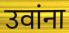
उवांना